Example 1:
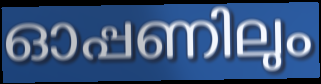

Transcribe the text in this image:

ഓപ്പണിലും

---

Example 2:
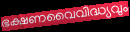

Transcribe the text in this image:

ഭക്ഷണവൈവിദ്ധ്യവും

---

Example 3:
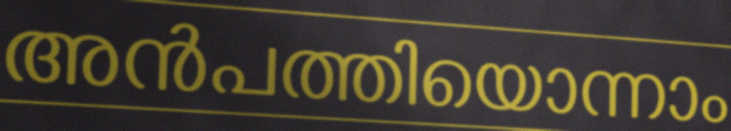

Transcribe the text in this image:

അൻപത്തിയൊന്നാം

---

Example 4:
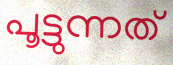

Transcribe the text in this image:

പൂട്ടുന്നത്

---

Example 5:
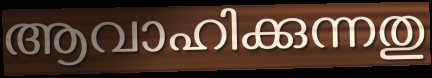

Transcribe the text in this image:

ആവാഹിക്കുന്നതു